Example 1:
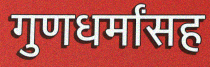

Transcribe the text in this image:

गुणधर्मांसह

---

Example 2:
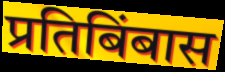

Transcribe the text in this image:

प्रतिबिंबास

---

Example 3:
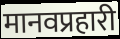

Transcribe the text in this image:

मानवप्रहारी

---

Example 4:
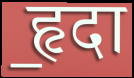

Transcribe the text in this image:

हृ॒दा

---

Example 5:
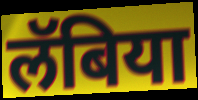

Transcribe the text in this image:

लॅबिया